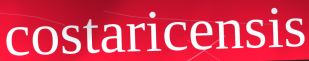
costaricensis